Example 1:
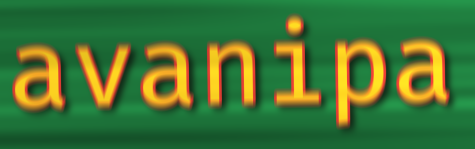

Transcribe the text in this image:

avanipa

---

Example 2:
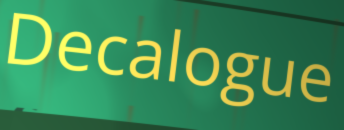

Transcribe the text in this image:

Decalogue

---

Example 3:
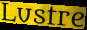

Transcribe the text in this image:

Lustre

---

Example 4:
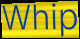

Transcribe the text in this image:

Whip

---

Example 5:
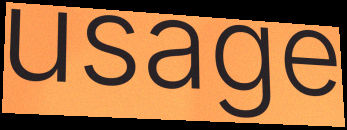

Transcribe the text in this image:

usage